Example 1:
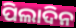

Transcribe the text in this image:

ପିଲାଦିନ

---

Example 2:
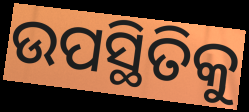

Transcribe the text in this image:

ଉପସ୍ଥିତିକୁ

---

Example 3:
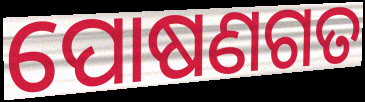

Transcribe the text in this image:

ପୋଷଣଗତ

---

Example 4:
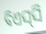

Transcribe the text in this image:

ବିଏସ୍‌ସି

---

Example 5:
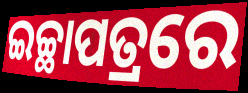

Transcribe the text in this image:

ଇଚ୍ଛାପତ୍ରରେ